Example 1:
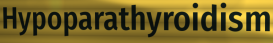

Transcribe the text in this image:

Hypoparathyroidism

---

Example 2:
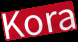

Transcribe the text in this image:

Kora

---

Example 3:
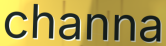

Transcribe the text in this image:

channa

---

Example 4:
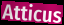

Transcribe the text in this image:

Atticus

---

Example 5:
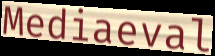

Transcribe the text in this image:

Mediaeval